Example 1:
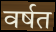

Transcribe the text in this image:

वर्षत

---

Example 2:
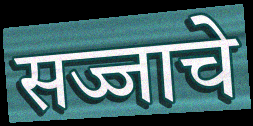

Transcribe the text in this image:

सज्जाचे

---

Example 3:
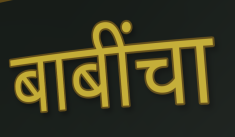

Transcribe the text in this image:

बाबींचा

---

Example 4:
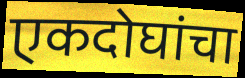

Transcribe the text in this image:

एकदोघांचा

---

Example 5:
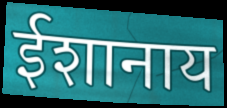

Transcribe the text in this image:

ईशानाय